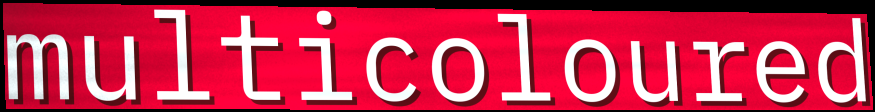
multicoloured